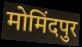
मोमिंदपुर